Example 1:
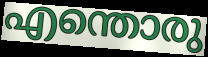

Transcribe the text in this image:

എന്തൊരു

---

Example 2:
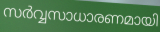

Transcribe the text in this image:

സർവ്വസാധാരണമായി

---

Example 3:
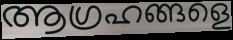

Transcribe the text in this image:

ആഗ്രഹങ്ങളെ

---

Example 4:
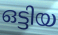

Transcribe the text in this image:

ഒട്ടിയ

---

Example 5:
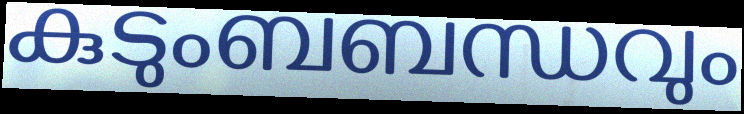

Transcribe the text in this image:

കുടുംബബന്ധവും